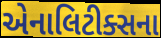
એનાલિટીક્સના